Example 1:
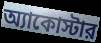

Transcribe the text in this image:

অ্যাকোস্টার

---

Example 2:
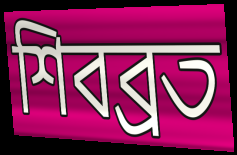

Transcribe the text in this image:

শিবব্রত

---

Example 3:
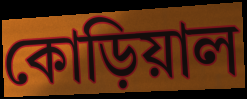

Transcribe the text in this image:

কোড়িয়াল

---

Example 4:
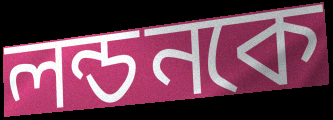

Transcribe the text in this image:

লন্ডনকে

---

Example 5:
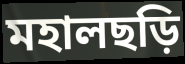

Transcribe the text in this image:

মহালছড়ি